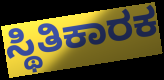
ಸ್ಥಿತಿಕಾರಕ